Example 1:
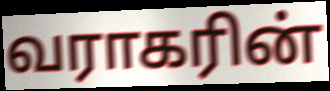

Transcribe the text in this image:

வராகரின்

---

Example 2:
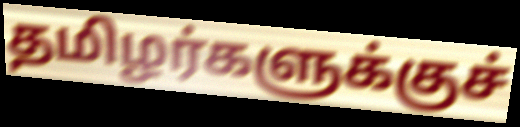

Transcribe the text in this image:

தமிழர்களுக்குச்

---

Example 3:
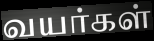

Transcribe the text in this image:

வயர்கள்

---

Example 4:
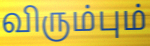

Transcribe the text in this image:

விரும்பும்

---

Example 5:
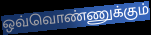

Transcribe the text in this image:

ஒவ்வொண்ணுக்கும்